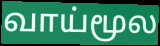
வாய்மூல